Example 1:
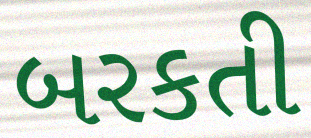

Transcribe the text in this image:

બરકતી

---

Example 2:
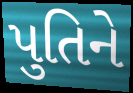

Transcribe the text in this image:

પુતિને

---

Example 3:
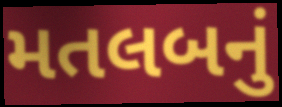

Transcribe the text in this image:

મતલબનું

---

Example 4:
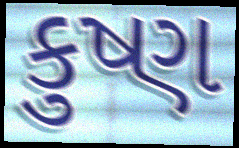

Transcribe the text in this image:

કુષ્ણ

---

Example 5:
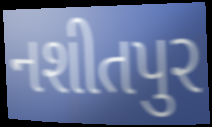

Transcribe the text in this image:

નશીતપુર